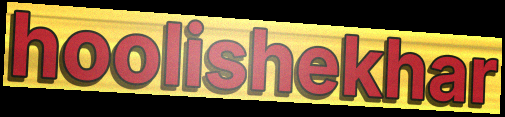
hoolishekhar